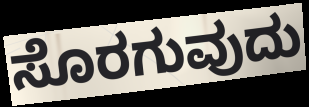
ಸೊರಗುವುದು